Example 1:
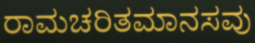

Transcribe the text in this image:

ರಾಮಚರಿತಮಾನಸವು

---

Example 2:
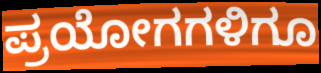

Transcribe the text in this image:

ಪ್ರಯೋಗಗಳಿಗೂ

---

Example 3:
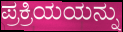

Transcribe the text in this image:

ಪ್ರಕ್ರಿಯಯನ್ನು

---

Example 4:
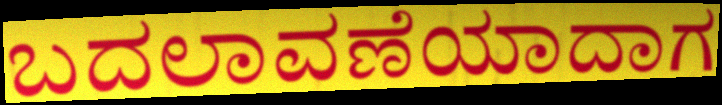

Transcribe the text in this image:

ಬದಲಾವಣೆಯಾದಾಗ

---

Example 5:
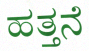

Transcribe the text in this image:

ಹತ್ತನೆ